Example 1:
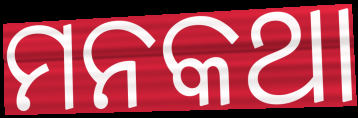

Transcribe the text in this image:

ମନକଥା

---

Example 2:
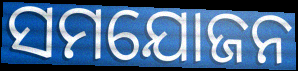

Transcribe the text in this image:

ସମଯୋଜନ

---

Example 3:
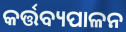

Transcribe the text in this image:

କର୍ତ୍ତବ୍ୟପାଳନ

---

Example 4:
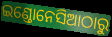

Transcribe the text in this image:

ଇଣ୍ଡୋନେସିଆଠାରୁ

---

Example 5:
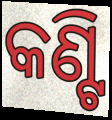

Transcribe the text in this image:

କଣ୍ଟି